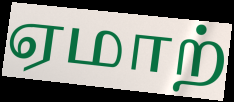
ஏமாற்